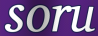
soru